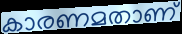
കാരണമതാണ്